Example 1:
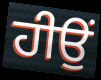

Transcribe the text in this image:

ਹੀਉਂ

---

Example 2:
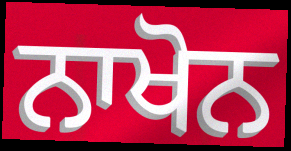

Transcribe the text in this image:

ਨਾਖੋਨ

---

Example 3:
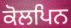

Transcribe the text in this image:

ਕੋਲਪਿਨ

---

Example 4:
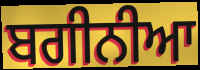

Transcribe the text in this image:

ਬਗੀਨੀਆ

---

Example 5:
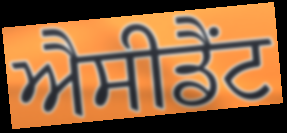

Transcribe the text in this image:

ਐਸੀਡੈਂਟ